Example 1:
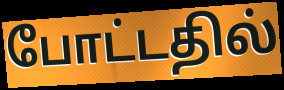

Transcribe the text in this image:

போட்டதில்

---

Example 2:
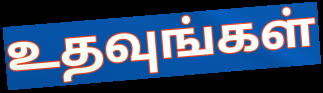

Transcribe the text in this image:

உதவுங்கள்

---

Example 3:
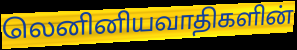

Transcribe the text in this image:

லெனினியவாதிகளின்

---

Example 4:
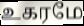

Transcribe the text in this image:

உகரமே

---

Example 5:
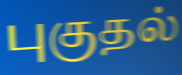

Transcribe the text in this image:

புகுதல்